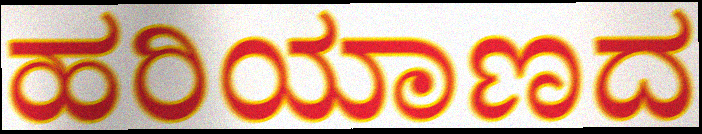
ಹರಿಯಾಣದ